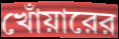
খোঁয়ারের